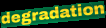
degradation